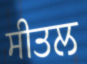
ਸੀਤਲ